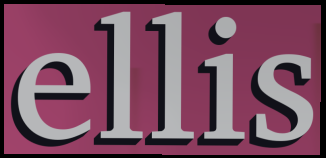
ellis